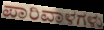
ಪಾರಿವಾಳಗಳು